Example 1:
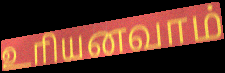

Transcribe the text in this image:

உரியனவாம்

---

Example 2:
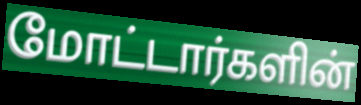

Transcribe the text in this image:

மோட்டார்களின்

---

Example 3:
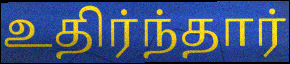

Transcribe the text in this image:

உதிர்ந்தார்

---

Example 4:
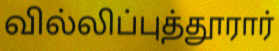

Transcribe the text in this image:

வில்லிப்புத்தூரார்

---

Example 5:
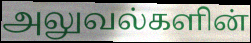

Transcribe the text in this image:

அலுவல்களின்